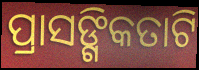
ପ୍ରାସଙ୍ଗିକତାଟି